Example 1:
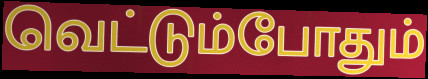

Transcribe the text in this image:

வெட்டும்போதும்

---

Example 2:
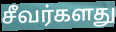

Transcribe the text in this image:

சீவர்களது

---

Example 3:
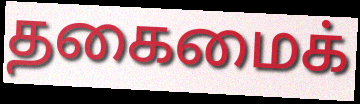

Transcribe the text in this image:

தகைமைக்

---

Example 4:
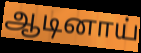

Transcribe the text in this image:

ஆடினாய்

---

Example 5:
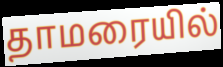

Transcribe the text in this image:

தாமரையில்